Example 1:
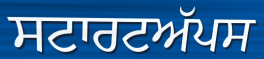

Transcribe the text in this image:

ਸਟਾਰਟਅੱਪਸ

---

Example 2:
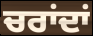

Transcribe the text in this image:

ਚਰਾਂਦਾਂ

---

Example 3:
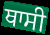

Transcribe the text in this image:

ਥਾਸੀ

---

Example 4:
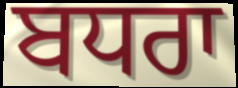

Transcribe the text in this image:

ਬਧਰਾ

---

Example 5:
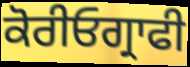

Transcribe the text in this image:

ਕੋਰੀਓਗ੍ਰਾਫੀ